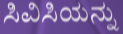
ಸಿವಿಸಿಯನ್ನು